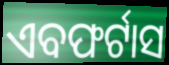
ଏବଫର୍ଟାସ